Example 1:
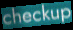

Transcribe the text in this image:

checkup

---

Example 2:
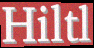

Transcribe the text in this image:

Hiltl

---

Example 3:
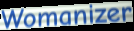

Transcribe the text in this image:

Womanizer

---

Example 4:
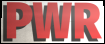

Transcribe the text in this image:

PWR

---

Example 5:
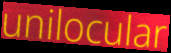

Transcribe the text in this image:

unilocular